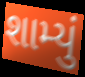
શામ્યું